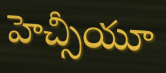
హెచ్సీయూ